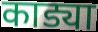
काड्या